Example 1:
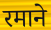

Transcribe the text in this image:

रमाने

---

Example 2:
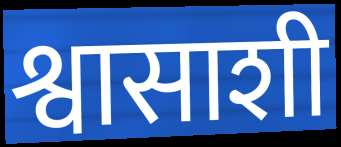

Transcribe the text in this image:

श्वासाशी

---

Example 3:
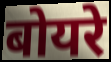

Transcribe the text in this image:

बोयरे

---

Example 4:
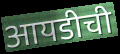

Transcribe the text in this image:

आयडीची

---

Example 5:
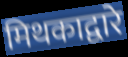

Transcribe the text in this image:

मिथकाद्वारे